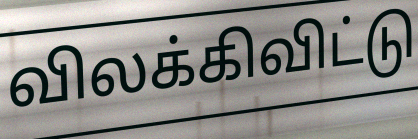
விலக்கிவிட்டு